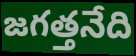
జగత్తనేది